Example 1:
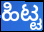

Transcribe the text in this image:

ಹಿಟ್ಟ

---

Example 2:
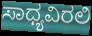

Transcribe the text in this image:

ಸಾಧ್ಯವಿರಲಿ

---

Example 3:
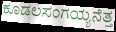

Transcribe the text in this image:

ಕೂಡಲಸಂಗಯ್ಯನೆತ್ತ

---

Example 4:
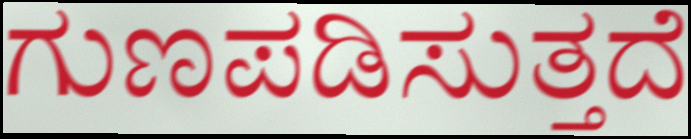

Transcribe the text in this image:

ಗುಣಪಡಿಸುತ್ತದೆ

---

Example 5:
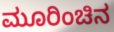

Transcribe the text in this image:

ಮೂರಿಂಚಿನ